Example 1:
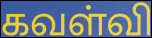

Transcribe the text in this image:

கவள்வி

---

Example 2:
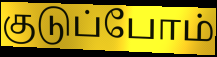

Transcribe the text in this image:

குடுப்போம்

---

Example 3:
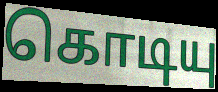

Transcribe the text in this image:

கொடியு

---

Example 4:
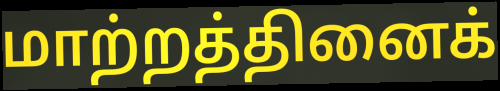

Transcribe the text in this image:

மாற்றத்தினைக்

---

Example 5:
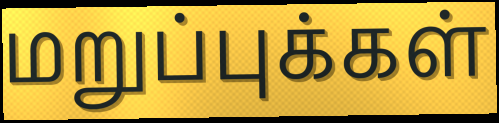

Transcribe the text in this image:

மறுப்புக்கள்